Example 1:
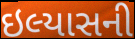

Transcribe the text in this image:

ઇલ્યાસની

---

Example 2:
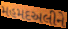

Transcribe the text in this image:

મહમદઅલીને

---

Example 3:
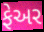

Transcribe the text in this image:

ફેઅર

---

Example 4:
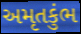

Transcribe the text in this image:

અમૃતકુંભ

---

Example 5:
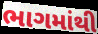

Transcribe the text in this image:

ભાગમાંથી